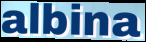
albina